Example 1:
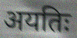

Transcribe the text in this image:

अयतिः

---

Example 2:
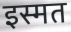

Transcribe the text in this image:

इस्मत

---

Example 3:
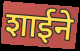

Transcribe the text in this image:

शाईने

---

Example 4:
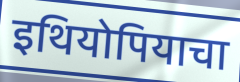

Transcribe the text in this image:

इथियोपियाचा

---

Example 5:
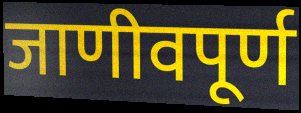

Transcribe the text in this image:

जाणीवपूर्ण